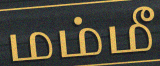
மம்மீ